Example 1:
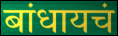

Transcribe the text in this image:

बांधायचं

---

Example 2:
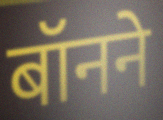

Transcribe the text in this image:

बॉनने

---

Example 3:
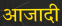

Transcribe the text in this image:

आजादी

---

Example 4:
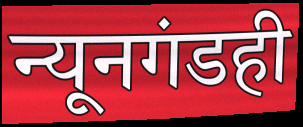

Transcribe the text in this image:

न्यूनगंडही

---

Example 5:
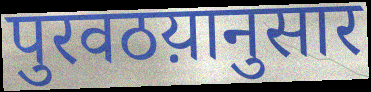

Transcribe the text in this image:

पुरवठय़ानुसार